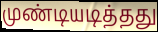
முண்டியடித்தது